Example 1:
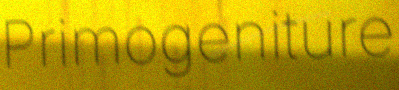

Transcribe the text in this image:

Primogeniture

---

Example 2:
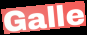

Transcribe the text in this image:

Galle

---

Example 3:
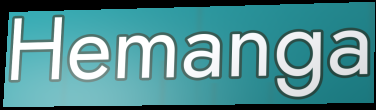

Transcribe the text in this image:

Hemanga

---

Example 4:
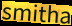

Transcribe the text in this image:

smitha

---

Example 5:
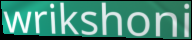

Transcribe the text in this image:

wrikshoni